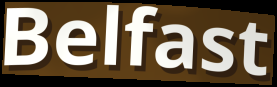
Belfast